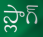
స్లాగ్